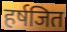
हर्षजित